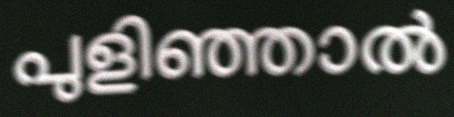
പുളിഞ്ഞാൽ